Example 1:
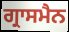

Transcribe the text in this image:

ਗ੍ਰਾਸਮੈਨ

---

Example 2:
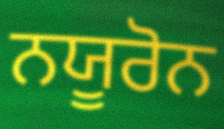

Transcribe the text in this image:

ਨਯੂਰੋਨ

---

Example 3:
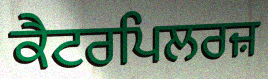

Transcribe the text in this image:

ਕੈਟਰਪਿਲਰਜ਼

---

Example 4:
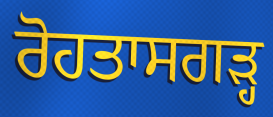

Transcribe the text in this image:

ਰੋਹਤਾਸਗੜ੍ਹ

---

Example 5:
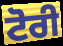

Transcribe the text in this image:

ਟੋਰੀ